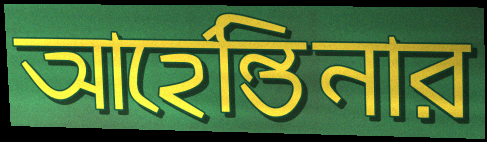
আর্হেন্তিনার